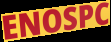
ENOSPC